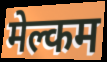
मेल्कम